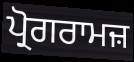
ਪ੍ਰੋਗਰਾਮਜ਼